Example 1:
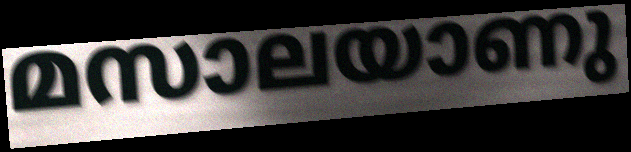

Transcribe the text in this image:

മസാലയാണു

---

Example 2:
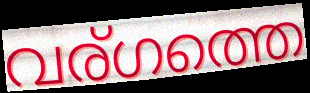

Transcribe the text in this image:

വര്ഗത്തെ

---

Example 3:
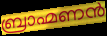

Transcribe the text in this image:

ബ്രാഹ്മണൻ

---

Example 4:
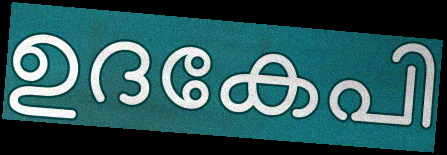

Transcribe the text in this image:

ഉദകേപി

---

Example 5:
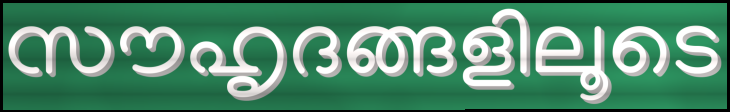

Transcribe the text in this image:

സൗഹൃദങ്ങളിലൂടെ